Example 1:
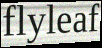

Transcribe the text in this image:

flyleaf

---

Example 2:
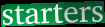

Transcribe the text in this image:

starters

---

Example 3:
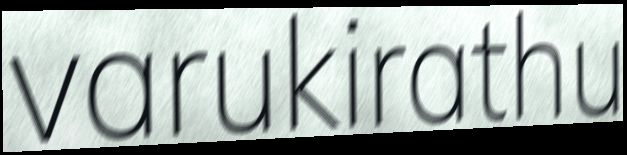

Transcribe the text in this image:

varukirathu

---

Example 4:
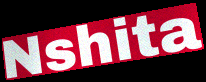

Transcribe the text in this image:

Nshita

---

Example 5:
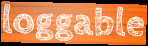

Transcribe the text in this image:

loggable